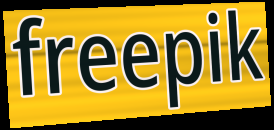
freepik